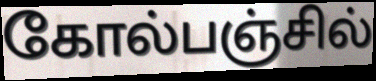
கோல்பஞ்சில்